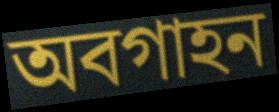
অবগাহন